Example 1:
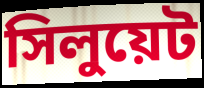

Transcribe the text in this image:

সিলুয়েট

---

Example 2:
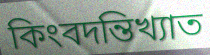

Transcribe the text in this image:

কিংবদন্তিখ্যাত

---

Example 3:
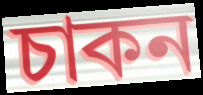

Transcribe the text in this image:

চাকন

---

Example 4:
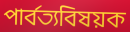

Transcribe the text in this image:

পার্বত্যবিষয়ক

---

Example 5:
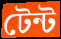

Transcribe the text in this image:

টেন্ট